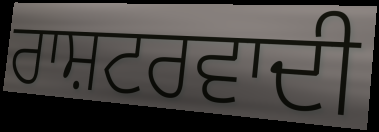
ਰਾਸ਼ਟਰਵਾਦੀ